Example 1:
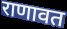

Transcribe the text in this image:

राणावत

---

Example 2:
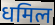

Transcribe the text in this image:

धमिल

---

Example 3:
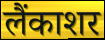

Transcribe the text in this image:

लैंकाशर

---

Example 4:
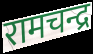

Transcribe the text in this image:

रामचन्‍द्र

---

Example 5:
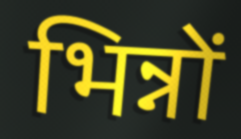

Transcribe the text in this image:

भिन्नों